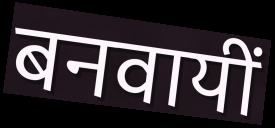
बनवायीं